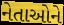
નેતાઓને